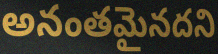
అనంతమైనదని